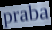
praba